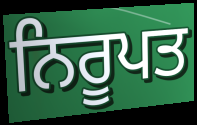
ਨਿਰੂਪਤ